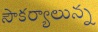
సౌకర్యాలున్న